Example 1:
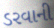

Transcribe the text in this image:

ડરવાની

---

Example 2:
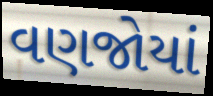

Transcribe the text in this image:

વણજોયાં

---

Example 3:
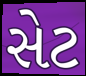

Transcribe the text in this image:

સેટ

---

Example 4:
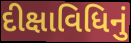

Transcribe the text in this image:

દીક્ષાવિધિનું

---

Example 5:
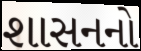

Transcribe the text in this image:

શાસનનો